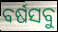
ବର୍ଷସବୁ